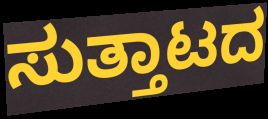
ಸುತ್ತಾಟದ